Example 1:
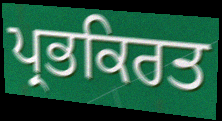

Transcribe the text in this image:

ਪ੍ਰਭਕਿਰਤ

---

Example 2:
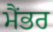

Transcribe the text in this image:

ਮੈਂਭਰ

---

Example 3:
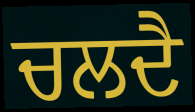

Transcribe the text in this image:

ਚਲਦੈ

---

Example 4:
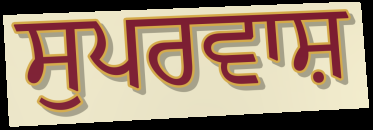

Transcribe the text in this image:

ਸੁਪਰਵਾਸ਼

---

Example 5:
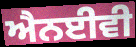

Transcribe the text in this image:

ਐਨਈਵੀ